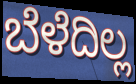
ಬೆಳೆದಿಲ್ಲ